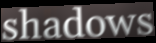
shadows